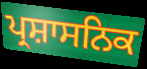
ਪ੍ਰਸ਼ਾਸਨਿਕ